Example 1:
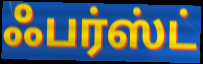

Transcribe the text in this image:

ஃபர்ஸ்ட்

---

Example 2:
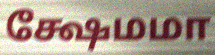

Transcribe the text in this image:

க்ஷேமமா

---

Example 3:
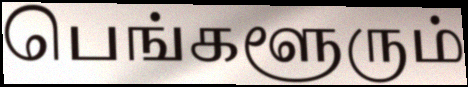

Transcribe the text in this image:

பெங்களூரும்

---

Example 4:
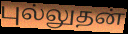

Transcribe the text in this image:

புல்லுதன்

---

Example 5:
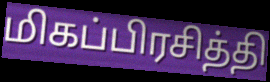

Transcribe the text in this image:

மிகப்பிரசித்தி